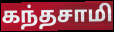
கந்தசாமி